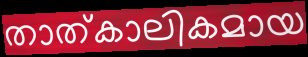
താത്കാലികമായ